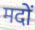
मदों